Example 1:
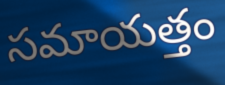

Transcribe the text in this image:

సమాయత్తం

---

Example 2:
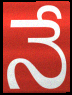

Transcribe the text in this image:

నే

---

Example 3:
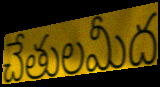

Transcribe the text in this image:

చేతులమీద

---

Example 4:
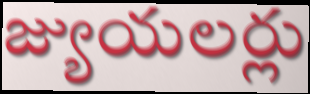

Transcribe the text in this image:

జ్యుయలర్లు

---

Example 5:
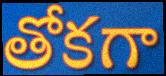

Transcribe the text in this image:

తోకగా